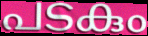
പടകും